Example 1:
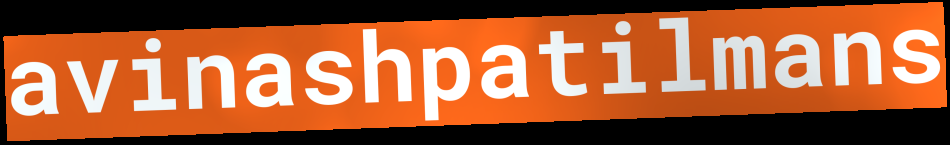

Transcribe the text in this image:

avinashpatilmans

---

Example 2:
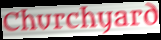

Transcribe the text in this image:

Churchyard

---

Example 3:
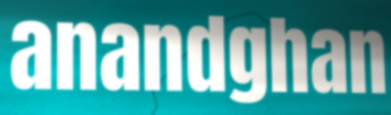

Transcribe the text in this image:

anandghan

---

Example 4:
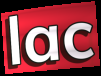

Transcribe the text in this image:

lac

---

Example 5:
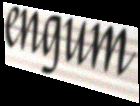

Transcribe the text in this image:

engum